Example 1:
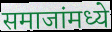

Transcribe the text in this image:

समाजांमध्ये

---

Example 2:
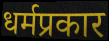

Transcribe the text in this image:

धर्मप्रकार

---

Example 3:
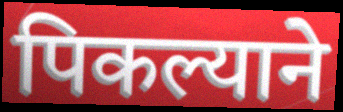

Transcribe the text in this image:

पिकल्याने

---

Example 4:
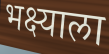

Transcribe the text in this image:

भक्ष्याला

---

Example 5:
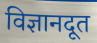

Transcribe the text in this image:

विज्ञानदूत